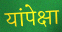
यांपेक्षा